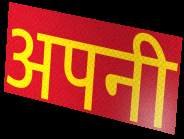
अपनी